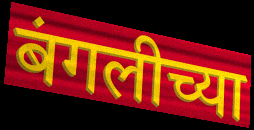
बंगलीच्या